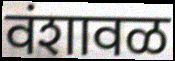
वंशावळ